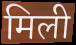
मिली